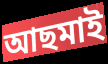
আছমাই